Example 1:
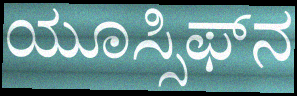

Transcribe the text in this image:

ಯೂಸ್ಸಿಫ್‌ನ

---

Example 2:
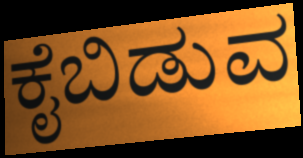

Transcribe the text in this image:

ಕೈಬಿಡುವ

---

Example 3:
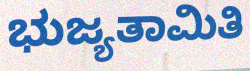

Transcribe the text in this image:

ಭುಜ್ಯತಾಮಿತಿ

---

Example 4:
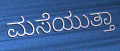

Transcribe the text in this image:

ಮಸೆಯುತ್ತಾ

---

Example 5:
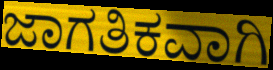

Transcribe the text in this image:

ಜಾಗತಿಕವಾಗಿ